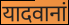
यादवानां